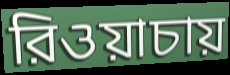
রিওয়াচায়